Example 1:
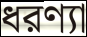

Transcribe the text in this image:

ধরণ্যা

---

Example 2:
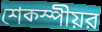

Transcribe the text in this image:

শেক্স্পীয়র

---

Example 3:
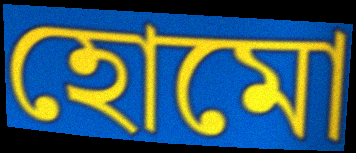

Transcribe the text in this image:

হোমো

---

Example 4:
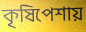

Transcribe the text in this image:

কৃষিপেশায়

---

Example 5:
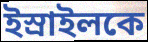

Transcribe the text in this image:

ইস্রাইলকে